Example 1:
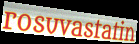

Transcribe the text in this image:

rosuvastatin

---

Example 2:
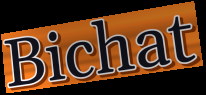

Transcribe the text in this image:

Bichat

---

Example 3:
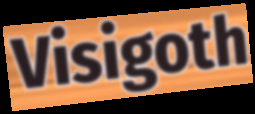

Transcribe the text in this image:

Visigoth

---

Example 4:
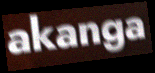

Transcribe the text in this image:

akanga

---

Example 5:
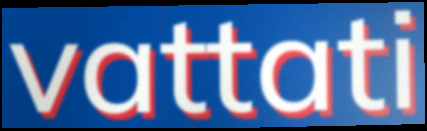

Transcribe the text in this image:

vattati